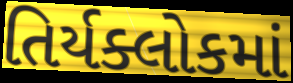
તિર્યક્લોકમાં